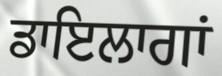
ਡਾਇਲਾਗਾਂ